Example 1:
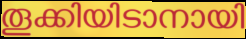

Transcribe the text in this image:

തൂക്കിയിടാനായി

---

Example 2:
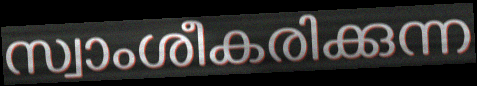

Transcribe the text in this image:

സ്വാംശീകരിക്കുന്ന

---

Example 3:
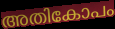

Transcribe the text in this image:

അതികോപം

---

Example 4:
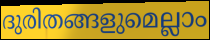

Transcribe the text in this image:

ദുരിതങ്ങളുമെല്ലാം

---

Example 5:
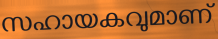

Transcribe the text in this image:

സഹായകവുമാണ്